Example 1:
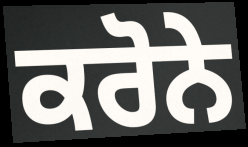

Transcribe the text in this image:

ਕਰੋਨੇ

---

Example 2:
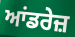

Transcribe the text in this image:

ਆਂਡਰੇਜ਼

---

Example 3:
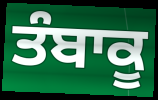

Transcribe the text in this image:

ਤੰਬਾਕੂ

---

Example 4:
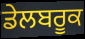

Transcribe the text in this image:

ਡੇਲਬਰੂਕ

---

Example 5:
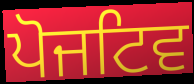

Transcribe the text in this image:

ਪੋਜਟਿਵ